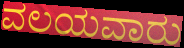
ವಲಯವಾರು